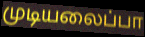
முடியலைப்பா